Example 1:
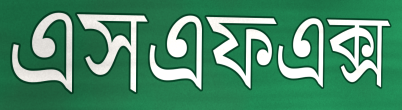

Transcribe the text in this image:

এসএফএক্স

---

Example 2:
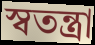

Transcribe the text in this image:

স্বতন্ত্রা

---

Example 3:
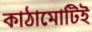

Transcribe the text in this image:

কাঠামোটিই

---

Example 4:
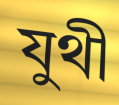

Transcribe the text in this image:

যুথী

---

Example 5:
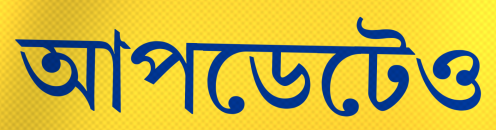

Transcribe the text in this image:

আপডেটেও